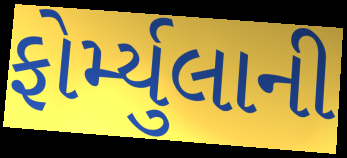
ફોર્મ્યુલાની